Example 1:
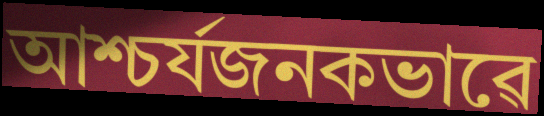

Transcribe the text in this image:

আশ্চৰ্যজনকভাৱে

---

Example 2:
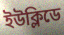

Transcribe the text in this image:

ইউক্লিডে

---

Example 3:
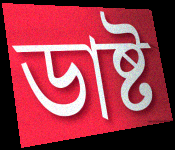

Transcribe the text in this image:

ডাষ্ট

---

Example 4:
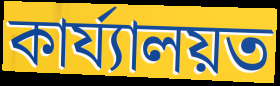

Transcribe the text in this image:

কাৰ্য্যালয়ত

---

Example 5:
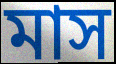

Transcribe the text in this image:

মাস